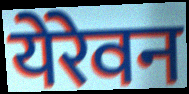
येरेवन